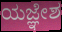
ಯಜ್ಞೇಶ